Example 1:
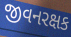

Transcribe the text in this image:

જીવનરક્ષક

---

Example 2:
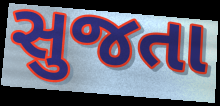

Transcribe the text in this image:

સુજતા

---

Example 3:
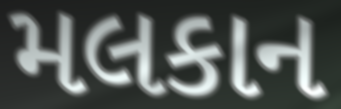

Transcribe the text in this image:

મલકાન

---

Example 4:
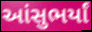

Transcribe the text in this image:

આંસુભર્યાં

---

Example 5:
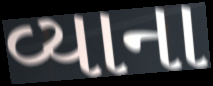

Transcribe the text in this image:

વ્યાના